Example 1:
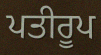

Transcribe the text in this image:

ਪਤੀਰੂਪ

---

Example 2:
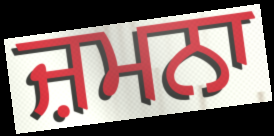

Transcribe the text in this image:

ਜ਼ਮਨਾ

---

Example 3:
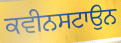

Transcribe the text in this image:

ਕਵੀਨਸਟਾਉਨ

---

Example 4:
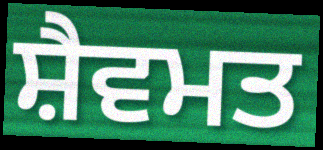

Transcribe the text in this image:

ਸ਼ੈਵਮਤ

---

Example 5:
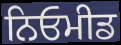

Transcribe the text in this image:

ਨਿਓਮੀਡ